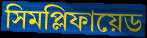
সিমপ্লিফায়েড